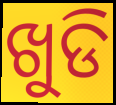
ଖୁଡି